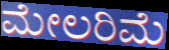
ಮೇಲರಿಮೆ